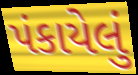
પંકાયેલું